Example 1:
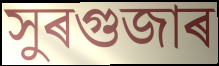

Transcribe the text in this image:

সুৰগুজাৰ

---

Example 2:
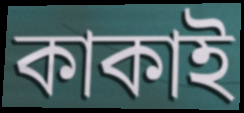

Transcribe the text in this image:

কাকাই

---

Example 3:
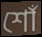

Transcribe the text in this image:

শোঁ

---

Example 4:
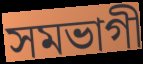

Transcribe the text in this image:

সমভাগী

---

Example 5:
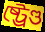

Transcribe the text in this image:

ষ্ট্ৰেণ্ড